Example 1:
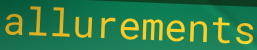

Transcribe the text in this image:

allurements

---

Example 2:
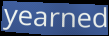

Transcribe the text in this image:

yearned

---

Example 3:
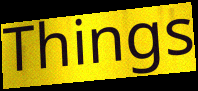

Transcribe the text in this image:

Things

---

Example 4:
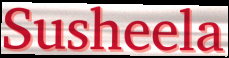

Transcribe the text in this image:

Susheela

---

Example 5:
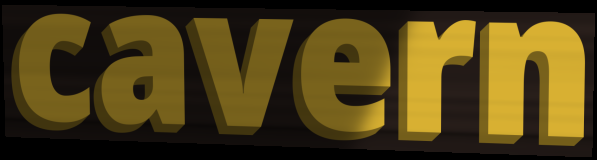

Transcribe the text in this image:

cavern